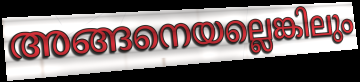
അങ്ങനെയല്ലെങ്കിലും